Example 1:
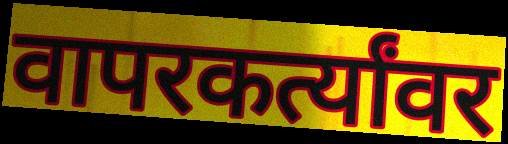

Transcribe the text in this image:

वापरकर्त्यांवर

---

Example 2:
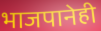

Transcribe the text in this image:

भाजपानेही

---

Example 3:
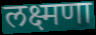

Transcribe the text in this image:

लक्ष्मणा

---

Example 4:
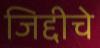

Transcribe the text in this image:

जिद्दीचे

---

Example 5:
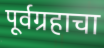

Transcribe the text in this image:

पूर्वग्रहाचा